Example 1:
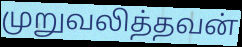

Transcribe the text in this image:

முறுவலித்தவன்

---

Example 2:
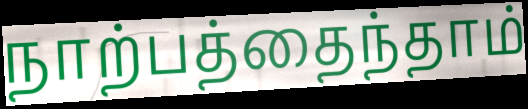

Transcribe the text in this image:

நாற்பத்தைந்தாம்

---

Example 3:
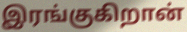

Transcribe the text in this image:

இரங்குகிறான்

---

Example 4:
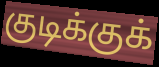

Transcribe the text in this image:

குடிக்குக்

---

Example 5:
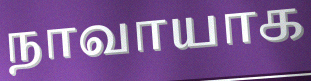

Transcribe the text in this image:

நாவாயாக